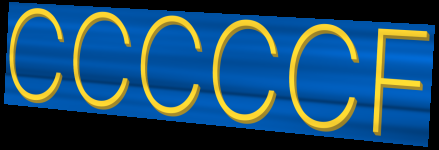
CCCCCF